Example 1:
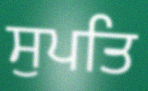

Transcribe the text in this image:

ਸੁਪਤਿ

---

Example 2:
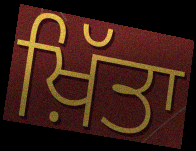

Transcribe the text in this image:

ਖ਼ਿੱਤਾ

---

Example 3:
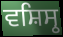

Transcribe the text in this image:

ਵਸ਼ਿਸ੍ਠ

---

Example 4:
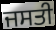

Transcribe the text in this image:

ਜਸਤੀ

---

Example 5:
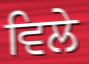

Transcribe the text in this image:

ਵਿਲੇ